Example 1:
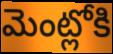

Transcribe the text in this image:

మెంట్లోకి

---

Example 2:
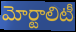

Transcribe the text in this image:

మోర్టాలిటీ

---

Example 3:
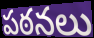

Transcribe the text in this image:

పఠనలు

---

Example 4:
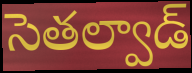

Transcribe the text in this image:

సెతల్వాడ్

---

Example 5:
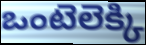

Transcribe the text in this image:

ఒంటెలెక్కి